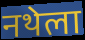
नथेला